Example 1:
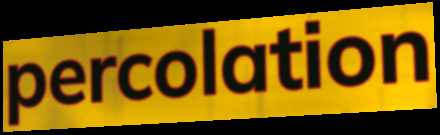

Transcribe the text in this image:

percolation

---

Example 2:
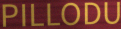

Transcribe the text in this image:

PILLODU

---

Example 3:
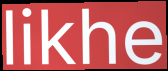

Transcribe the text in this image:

likhe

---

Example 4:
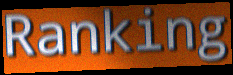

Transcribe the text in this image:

Ranking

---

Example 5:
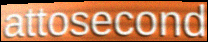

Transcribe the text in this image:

attosecond